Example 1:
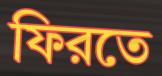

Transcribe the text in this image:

ফিরতে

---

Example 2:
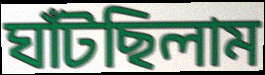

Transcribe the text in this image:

ঘাঁটছিলাম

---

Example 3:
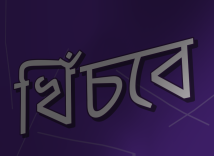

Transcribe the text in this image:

খিঁচবে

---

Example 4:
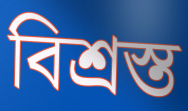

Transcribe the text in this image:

বিশ্রস্ত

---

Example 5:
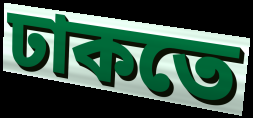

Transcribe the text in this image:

ঢাকতে